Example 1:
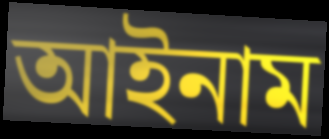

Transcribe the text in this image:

আইনাম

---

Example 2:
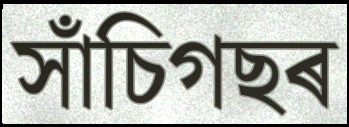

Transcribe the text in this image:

সাঁচিগছৰ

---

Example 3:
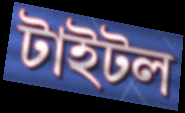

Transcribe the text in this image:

টাইটল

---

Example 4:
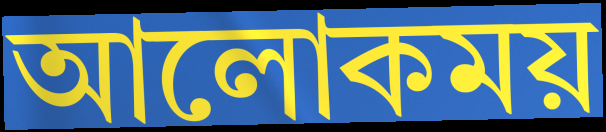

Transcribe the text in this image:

আলোকময়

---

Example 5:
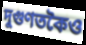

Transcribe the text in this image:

দুগুণতকৈও